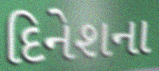
દિનેશના